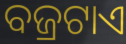
ବଜ୍ରଟାଏ